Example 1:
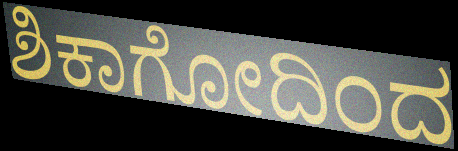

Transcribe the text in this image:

ಶಿಕಾಗೋದಿಂದ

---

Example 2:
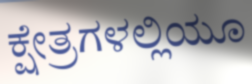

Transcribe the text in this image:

ಕ್ಷೇತ್ರಗಳಲ್ಲಿಯೂ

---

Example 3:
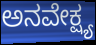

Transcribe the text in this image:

ಅನವೇಕ್ಷ್ಯ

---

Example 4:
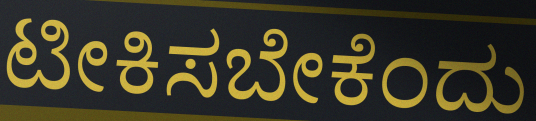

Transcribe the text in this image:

ಟೀಕಿಸಬೇಕೆಂದು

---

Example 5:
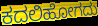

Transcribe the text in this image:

ಕದಲಿಹೋಗದು